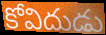
కోవిదుడు